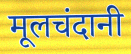
मूलचंदानी